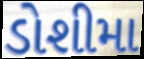
ડોશીમા